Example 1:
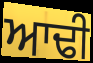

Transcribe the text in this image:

ਆਢੀ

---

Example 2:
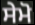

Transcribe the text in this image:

ਸੇਮੋ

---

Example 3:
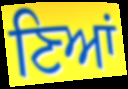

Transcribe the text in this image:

ਣਿਆਂ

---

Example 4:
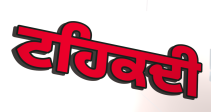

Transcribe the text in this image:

ਟਹਿਕਦੀ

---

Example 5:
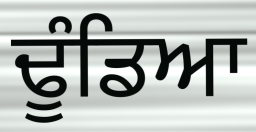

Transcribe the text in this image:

ਢੂੰਡਿਆ